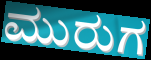
ಮುರುಗ